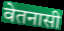
वेतनासी